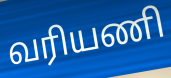
வரியணி